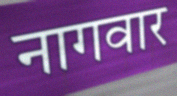
नागवार